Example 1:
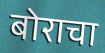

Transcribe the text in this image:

बोराचा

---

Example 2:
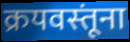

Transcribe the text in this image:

क्रयवस्तूंना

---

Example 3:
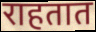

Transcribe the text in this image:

राहतात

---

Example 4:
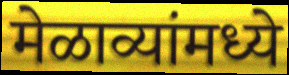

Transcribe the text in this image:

मेळाव्यांमध्ये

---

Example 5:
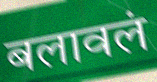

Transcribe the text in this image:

बलावलं